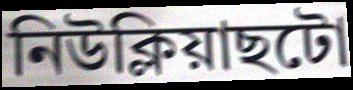
নিউক্লিয়াছটো